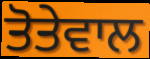
ਤੋਤੇਵਾਲ